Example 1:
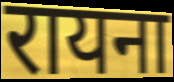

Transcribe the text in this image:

रायना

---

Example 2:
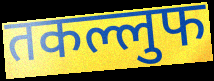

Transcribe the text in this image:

तकल्लुफ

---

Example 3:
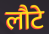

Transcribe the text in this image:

लौटे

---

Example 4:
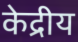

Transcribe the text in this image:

केद्रीय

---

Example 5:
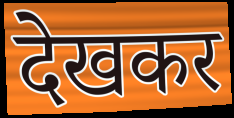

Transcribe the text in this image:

देखकर